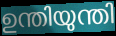
ഉന്തിയുന്തി